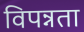
विपन्नता